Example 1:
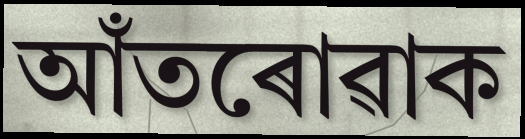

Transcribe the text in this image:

আঁতৰোৱাক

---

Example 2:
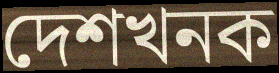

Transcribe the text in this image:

দেশখনক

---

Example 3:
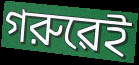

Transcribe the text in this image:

গৰুৱেই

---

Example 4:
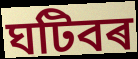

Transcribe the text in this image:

ঘটিবৰ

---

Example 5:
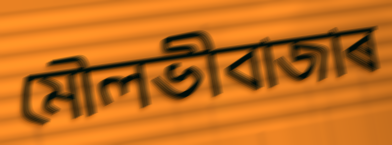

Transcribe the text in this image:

মৌলভীবাজাৰ